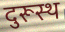
दुरूस्थ